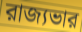
রাজ্যভার